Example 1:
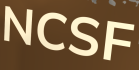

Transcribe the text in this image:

NCSF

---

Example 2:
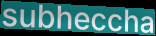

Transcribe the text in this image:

subheccha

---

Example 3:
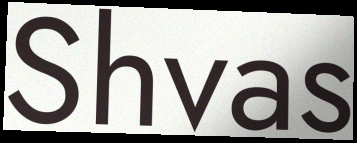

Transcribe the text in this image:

Shvas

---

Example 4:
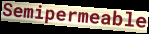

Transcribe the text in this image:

Semipermeable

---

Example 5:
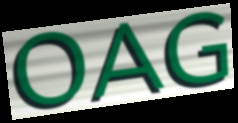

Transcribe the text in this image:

OAG